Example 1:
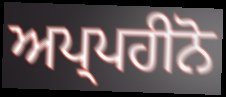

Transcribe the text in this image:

ਅਪ੍ਪਹੀਨੋ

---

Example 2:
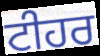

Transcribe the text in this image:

ਟੀਹਰ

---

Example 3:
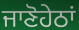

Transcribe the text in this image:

ਜਾਣੋਹੇਠਾਂ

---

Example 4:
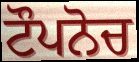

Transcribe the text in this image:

ਟੌਪਨੋਚ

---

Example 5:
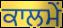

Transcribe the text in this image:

ਕਾਲਮੇਂ